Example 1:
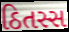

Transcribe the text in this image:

ઠિતસ્સ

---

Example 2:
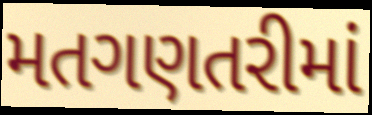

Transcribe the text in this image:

મતગણતરીમાં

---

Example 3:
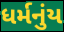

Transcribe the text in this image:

ધર્મનુંય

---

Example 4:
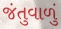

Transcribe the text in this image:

જંતુવાળું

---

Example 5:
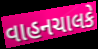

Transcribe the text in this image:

વાહનચાલકે